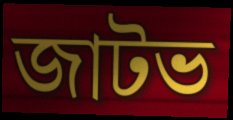
জাটভ